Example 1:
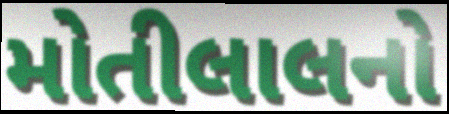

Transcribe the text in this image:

મોતીલાલનો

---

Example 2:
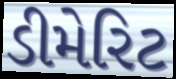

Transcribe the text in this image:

ડીમેરિટ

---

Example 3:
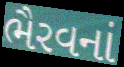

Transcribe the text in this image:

ભૈરવનાં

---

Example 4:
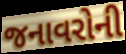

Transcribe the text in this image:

જનાવરોની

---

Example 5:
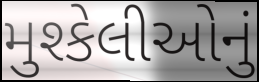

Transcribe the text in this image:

મુશ્કેલીઓનું